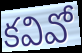
కవివో